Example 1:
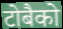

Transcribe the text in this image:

टोबैको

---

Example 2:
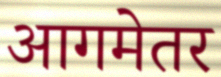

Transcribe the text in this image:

आगमेतर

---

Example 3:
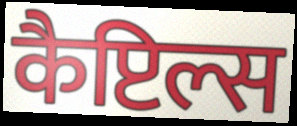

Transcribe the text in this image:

कैप्टिल्स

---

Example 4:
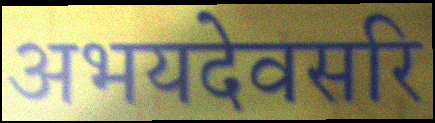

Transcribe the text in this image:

अभयदेवसरि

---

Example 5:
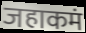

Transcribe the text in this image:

जहाकमं